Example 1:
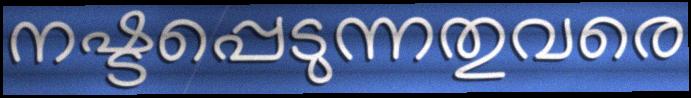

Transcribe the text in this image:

നഷ്ടപ്പെടുന്നതുവരെ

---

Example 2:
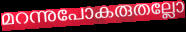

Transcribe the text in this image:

മറന്നുപോകരുതല്ലോ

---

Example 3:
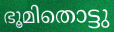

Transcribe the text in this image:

ഭൂമിതൊട്ടു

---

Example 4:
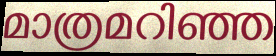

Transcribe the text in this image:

മാത്രമറിഞ്ഞ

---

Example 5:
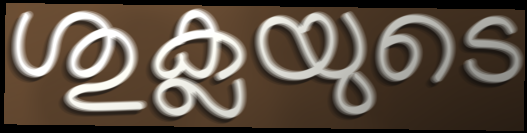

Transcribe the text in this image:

ശുക്ലയുടെ